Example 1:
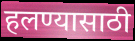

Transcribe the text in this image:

हलण्यासाठी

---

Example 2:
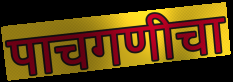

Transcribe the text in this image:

पाचगणीचा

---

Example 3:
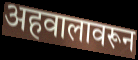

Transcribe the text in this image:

अहवालावरून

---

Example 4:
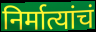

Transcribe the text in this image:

निर्मात्यांचं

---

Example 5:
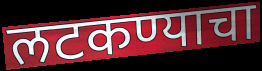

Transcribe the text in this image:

लटकण्याचा